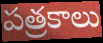
పత్రకాలు